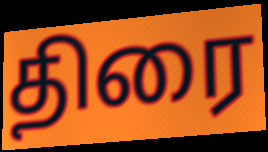
திரை